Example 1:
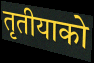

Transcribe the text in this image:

तृतीयाको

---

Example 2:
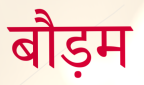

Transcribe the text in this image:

बौड़म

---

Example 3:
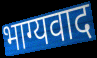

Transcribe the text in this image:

भाग्यवाद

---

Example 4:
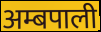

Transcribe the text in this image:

अम्बपाली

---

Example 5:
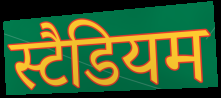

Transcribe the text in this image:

स्टैडियम